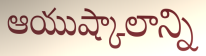
ఆయుష్కాలాన్ని